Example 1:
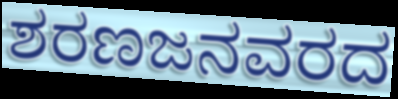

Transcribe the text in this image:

ಶರಣಜನವರದ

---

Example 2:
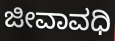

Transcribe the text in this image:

ಜೀವಾವಧಿ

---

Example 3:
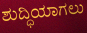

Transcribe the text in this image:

ಶುದ್ಧಿಯಾಗಲು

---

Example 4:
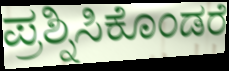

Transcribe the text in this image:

ಪ್ರಶ್ನಿಸಿಕೊಂಡರೆ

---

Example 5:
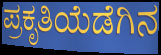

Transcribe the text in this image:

ಪ್ರಕೃತಿಯೆಡೆಗಿನ